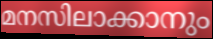
മനസിലാക്കാനും